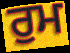
ਰੁਮ